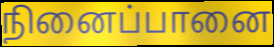
நினைப்பானை